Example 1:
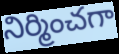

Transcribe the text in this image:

నిర్మించగా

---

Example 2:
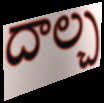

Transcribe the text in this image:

దాల్చ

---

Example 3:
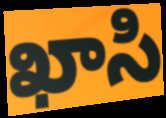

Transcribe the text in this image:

ఖాసి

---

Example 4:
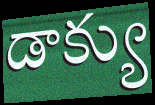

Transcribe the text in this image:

డాక్యు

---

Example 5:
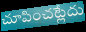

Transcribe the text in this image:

చూపించట్లేదు